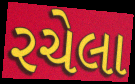
રચેલા